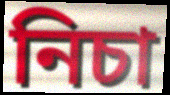
নিচা